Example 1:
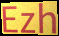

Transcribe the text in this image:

Ezh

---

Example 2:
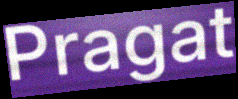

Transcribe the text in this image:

Pragat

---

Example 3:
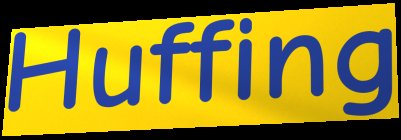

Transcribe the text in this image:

Huffing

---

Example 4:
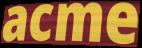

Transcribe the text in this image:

acme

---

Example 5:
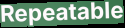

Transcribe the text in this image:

Repeatable